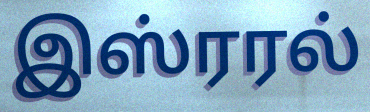
இஸ்ரரல்